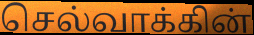
செல்வாக்கின்